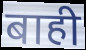
बाही